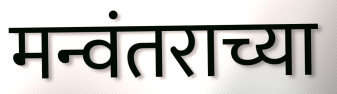
मन्वंतराच्या